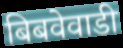
बिबवेवाडी